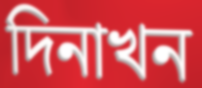
দিনাখন